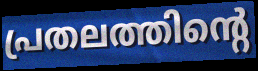
പ്രതലത്തിന്റെ